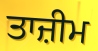
ਤਾਜ਼ੀਮ